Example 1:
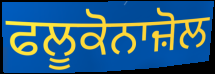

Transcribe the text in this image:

ਫਲੂਕੋਨਾਜ਼ੋਲ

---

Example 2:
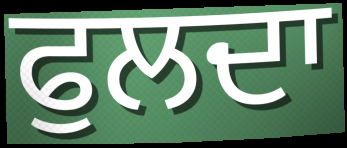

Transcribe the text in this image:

ਫੁਲਦਾ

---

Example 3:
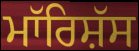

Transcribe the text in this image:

ਮਾੱਰਿਸ਼ੱਸ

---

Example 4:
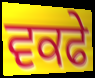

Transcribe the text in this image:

ਵਕਫੇ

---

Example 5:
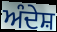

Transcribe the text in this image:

ਅੰਦੇਸ਼